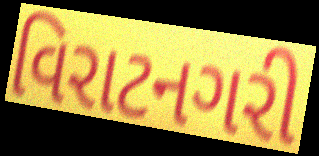
વિરાટનગરી